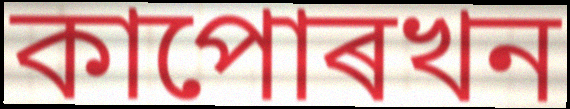
কাপোৰখন